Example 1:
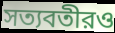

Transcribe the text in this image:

সত্যবতীরও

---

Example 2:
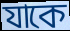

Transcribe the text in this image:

যাকে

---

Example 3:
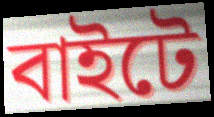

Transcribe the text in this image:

বাইটে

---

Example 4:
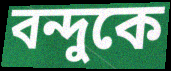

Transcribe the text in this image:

বন্দুকে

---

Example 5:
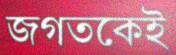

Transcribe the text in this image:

জগতকেই